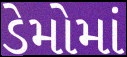
ડેમોમાં